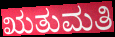
ಋತುಮತಿ